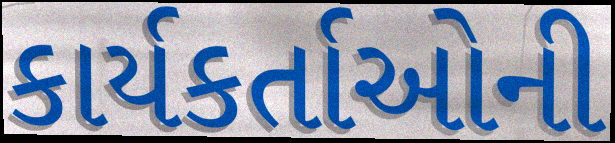
કાર્યકર્તાઓની